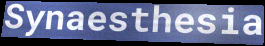
Synaesthesia